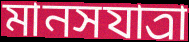
মানসযাত্রা